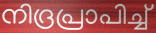
നിദ്രപ്രാപിച്ച്